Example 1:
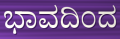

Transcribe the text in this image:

ಭಾವದಿಂದ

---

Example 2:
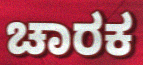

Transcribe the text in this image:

ಚಾರಕ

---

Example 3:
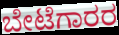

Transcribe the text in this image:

ಬೇಟೆಗಾರರ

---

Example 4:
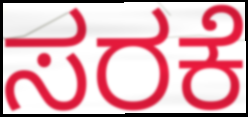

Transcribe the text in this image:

ಸರಕೆ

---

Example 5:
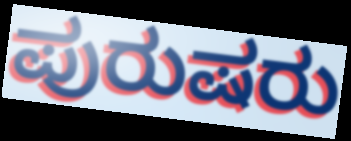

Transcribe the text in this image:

ಪುರುಷರು